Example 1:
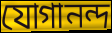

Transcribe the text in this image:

যোগানন্দ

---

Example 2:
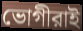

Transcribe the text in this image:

ভোগীরাই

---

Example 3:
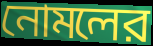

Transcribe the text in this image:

নোমলের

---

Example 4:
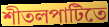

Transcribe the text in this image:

শীতলপাটিতে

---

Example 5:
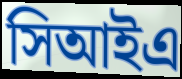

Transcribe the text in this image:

সিআইএ